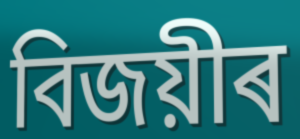
বিজয়ীৰ